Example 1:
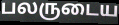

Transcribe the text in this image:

பலருடைய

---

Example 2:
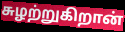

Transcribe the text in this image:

சுழற்றுகிறான்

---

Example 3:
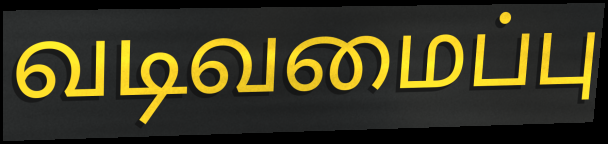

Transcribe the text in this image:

வடிவமைப்பு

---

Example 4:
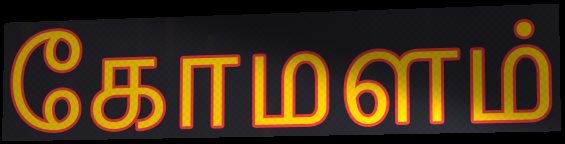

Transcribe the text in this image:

கோமளம்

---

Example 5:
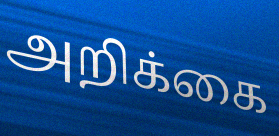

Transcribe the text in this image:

அறிக்கை